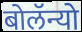
बोलॅन्यो